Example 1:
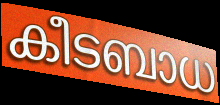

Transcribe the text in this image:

കീടബാധ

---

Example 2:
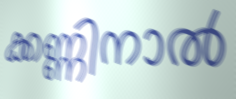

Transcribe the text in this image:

ക്കണ്ണിനാൽ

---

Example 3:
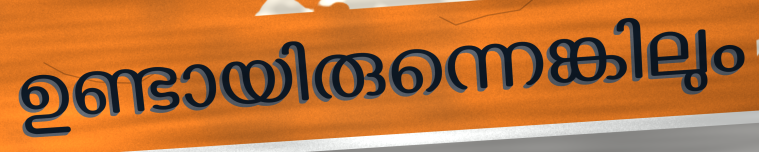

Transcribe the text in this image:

ഉണ്ടായിരുന്നെങ്കിലും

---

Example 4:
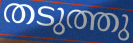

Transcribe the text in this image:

തടുത്തു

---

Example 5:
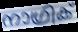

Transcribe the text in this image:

നാഗ്രിക്